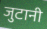
जुटानी